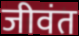
जीवंत